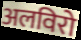
अलविरो